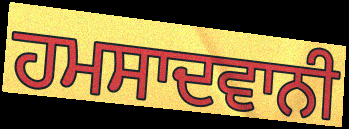
ਹਮਸਾਦਵਾਨੀ